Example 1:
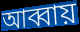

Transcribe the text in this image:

আব্বায়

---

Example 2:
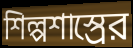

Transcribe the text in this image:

শিল্পশাস্ত্রের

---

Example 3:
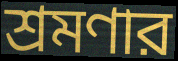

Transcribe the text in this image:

শ্রমণার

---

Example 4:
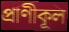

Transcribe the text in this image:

প্রাণীকূল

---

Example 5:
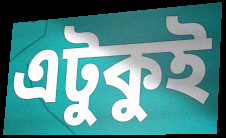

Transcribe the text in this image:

এটুকুই